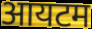
आयटम